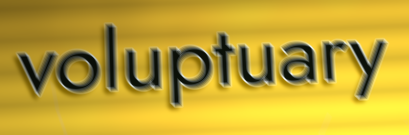
voluptuary